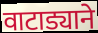
वाटाड्याने